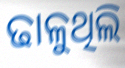
ଢାଳୁଥିଲି